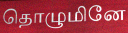
தொழுமினே